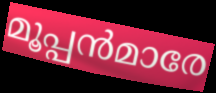
മൂപ്പൻമാരേ